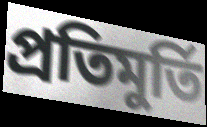
প্রতিমুর্তি